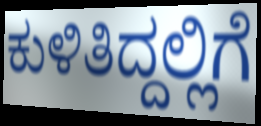
ಕುಳಿತಿದ್ದಲ್ಲಿಗೆ